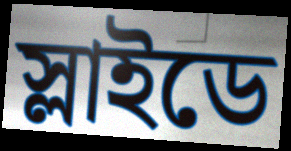
স্লাইডে